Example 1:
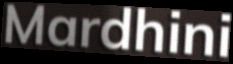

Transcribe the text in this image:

Mardhini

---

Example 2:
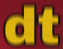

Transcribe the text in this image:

dt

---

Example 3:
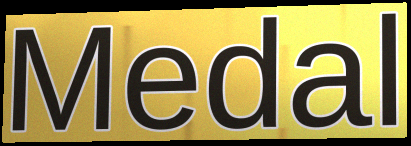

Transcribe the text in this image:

Medal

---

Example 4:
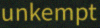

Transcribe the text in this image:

unkempt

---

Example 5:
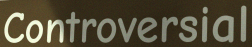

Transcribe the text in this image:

Controversial